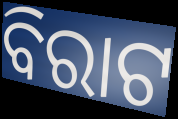
ବିରାଟ